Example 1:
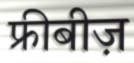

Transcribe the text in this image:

फ्रीबीज़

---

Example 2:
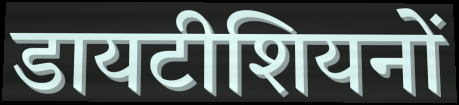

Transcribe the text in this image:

डायटीशियनों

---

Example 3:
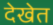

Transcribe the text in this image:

देखेत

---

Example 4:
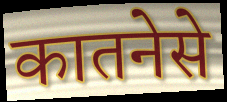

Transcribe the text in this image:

कातनेसे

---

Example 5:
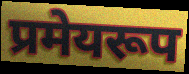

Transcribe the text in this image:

प्रमेयरूप